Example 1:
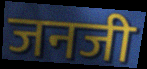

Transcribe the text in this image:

जनजी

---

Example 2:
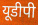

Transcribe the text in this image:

यूडीपी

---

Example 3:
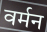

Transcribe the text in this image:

वर्मन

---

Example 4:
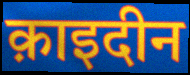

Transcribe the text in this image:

क़ाइदीन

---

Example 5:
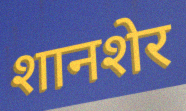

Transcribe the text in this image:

शानशेर